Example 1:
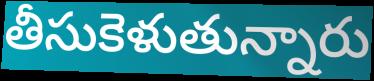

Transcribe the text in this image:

తీసుకెళుతున్నారు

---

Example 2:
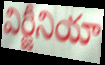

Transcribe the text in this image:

విర్జీనియా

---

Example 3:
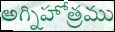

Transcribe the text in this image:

అగ్నిహోత్రము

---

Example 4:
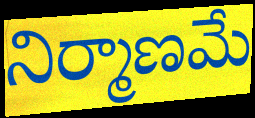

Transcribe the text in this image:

నిర్మాణమే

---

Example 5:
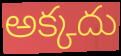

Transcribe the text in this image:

అక్కదు